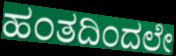
ಹಂತದಿಂದಲೇ